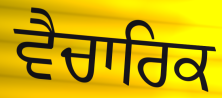
ਵੈਚਾਰਿਕ